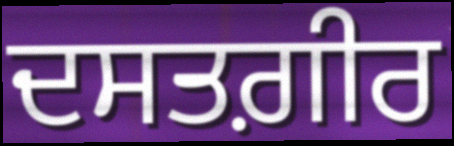
ਦਸਤਗ਼ੀਰ